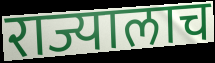
राज्यालाच